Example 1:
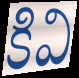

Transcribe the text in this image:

కివి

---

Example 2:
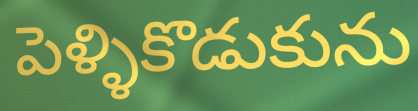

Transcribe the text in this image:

పెళ్ళికొడుకును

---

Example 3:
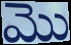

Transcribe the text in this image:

మొ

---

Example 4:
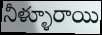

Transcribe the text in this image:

నీళ్ళూరాయి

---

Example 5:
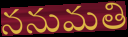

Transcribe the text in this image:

ననుమతి